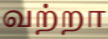
வற்றா